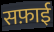
सफ़ाई